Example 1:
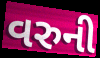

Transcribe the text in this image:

વરુની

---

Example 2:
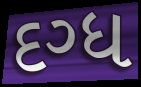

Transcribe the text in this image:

દગ્ધ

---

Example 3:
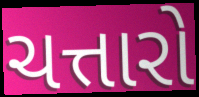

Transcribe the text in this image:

ચત્તારો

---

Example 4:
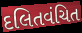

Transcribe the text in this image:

દલિતવંચિત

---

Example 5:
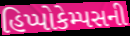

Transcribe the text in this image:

હિપ્પોકેમ્પસની